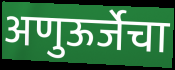
अणुऊर्जेचा